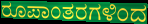
ರೂಪಾಂತರಗಳಿಂದ